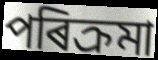
পৰিক্ৰমা